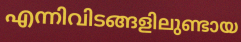
എന്നിവിടങ്ങളിലുണ്ടായ